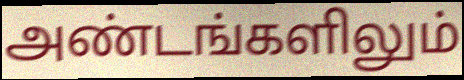
அண்டங்களிலும்